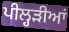
ਪੀਲ੍ਹੜੀਆਂ